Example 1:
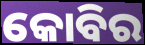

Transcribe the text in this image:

କୋବିର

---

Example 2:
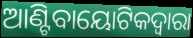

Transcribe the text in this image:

ଆଣ୍ଟିବାୟୋଟିକଦ୍ୱାରା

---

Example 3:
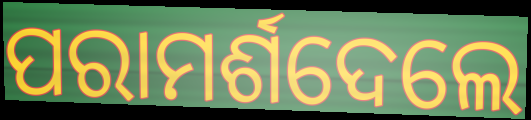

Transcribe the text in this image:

ପରାମର୍ଶଦେଲେ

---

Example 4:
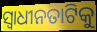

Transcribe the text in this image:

ସ୍ୱାଧୀନତାଟିକୁ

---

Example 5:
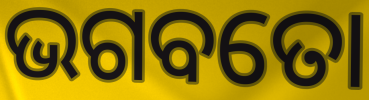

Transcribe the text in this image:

ଭଗବତୋ